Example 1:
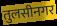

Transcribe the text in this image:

तुलसीनगर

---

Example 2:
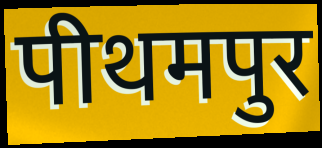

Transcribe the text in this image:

पीथमपुर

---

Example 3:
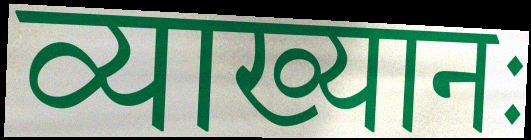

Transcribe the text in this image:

व्याख्यानः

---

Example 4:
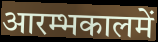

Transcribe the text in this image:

आरम्भकालमें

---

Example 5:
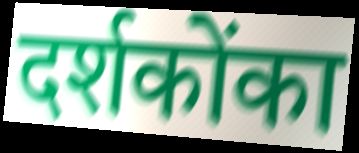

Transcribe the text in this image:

दर्शकोंका